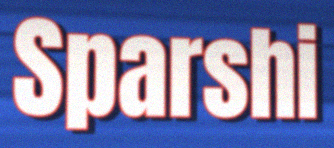
Sparshi